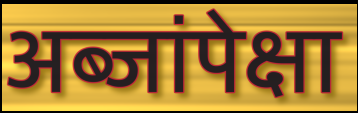
अब्जांपेक्षा